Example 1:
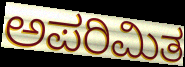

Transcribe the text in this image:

ಅಪರಿಮಿತ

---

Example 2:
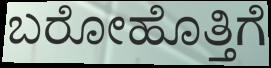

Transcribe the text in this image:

ಬರೋಹೊತ್ತಿಗೆ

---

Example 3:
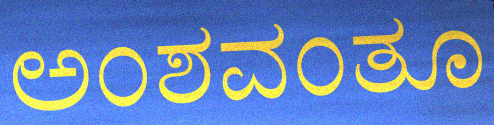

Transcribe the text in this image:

ಅಂಶವಂತೂ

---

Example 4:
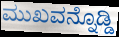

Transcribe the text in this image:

ಮುಖವನ್ನೊಡ್ಡಿ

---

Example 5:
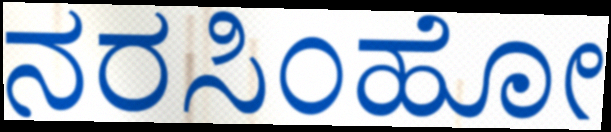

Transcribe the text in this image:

ನರಸಿಂಹೋ